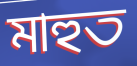
মাহুত